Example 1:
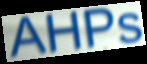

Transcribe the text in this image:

AHPs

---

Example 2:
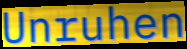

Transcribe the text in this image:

Unruhen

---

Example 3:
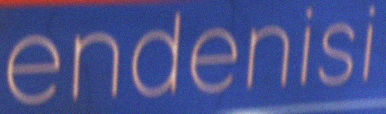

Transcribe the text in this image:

endenisi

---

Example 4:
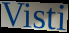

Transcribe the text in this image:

Visti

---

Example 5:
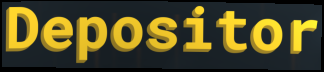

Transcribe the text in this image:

Depositor